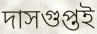
দাসগুপ্তই